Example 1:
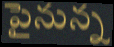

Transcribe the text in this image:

పైనున్న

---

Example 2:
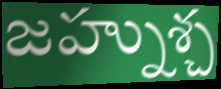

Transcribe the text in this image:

జహ్నుశ్చ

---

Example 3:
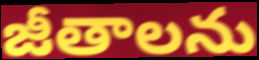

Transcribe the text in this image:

జీతాలను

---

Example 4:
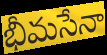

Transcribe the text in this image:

భీమసేనా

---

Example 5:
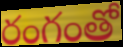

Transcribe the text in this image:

రంగంతో